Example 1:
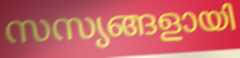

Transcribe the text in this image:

സസ്യങ്ങളായി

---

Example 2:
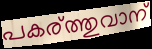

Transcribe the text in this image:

പകര്ത്തുവാന്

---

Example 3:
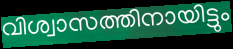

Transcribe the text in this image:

വിശ്വാസത്തിനായിട്ടും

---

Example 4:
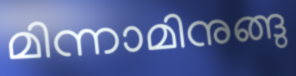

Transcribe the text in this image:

മിന്നാമിനുങ്ങു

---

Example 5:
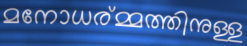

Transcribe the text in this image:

മനോധര്മ്മത്തിനുള്ള